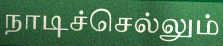
நாடிச்செல்லும்